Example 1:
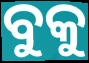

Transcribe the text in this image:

ବୁକୁ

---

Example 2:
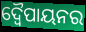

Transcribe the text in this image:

ଦ୍ୱୈପାୟନର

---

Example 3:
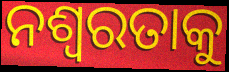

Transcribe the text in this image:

ନଶ୍ବରତାକୁ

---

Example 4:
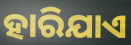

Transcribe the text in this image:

ହାରିଯାଏ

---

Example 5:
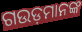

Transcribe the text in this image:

ଗଉଡ଼ମାନଙ୍କ